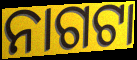
ନାଗଟା